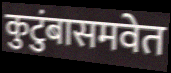
कुटुंबासमवेत